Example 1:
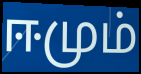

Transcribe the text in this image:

ஈமும்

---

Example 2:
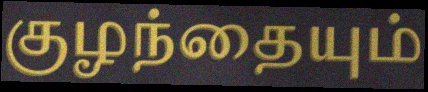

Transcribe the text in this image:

குழந்தையும்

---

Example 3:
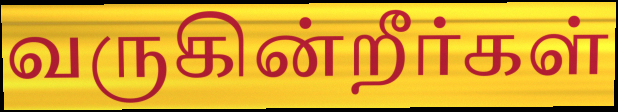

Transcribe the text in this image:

வருகின்றீர்கள்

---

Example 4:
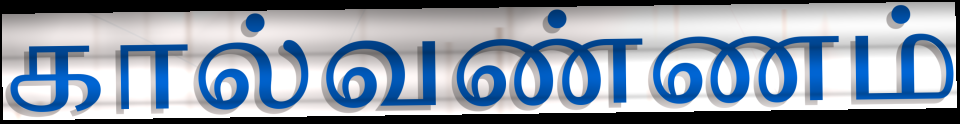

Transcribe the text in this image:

கால்வண்ணம்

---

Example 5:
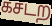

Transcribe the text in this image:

கசடற